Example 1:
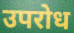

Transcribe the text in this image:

उपरोध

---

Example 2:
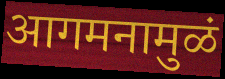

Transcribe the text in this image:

आगमनामुळं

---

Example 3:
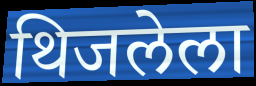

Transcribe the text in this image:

थिजलेला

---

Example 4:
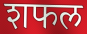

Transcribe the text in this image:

शफल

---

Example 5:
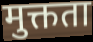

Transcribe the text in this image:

मुक्तता